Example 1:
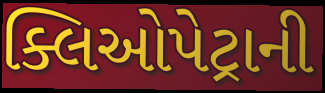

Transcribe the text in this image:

ક્લિઓપેટ્રાની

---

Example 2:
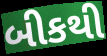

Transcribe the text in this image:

બીકથી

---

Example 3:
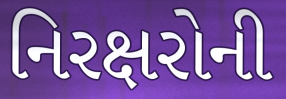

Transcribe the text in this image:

નિરક્ષરોની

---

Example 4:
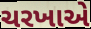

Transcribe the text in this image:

ચરખાએ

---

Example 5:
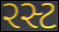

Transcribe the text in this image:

રસ્ટ